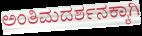
ಅಂತಿಮದರ್ಶನಕ್ಕಾಗಿ